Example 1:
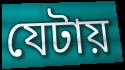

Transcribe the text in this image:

যেটায়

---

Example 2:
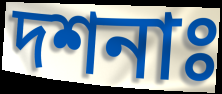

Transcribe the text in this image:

দশনাঃ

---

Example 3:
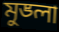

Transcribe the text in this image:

মুঙ্লা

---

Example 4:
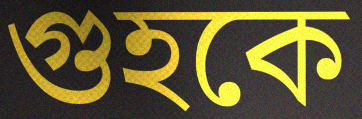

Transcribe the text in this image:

গুহকে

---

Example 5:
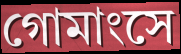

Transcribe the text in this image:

গোমাংসে